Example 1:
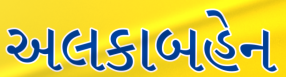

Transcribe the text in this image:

અલકાબહેન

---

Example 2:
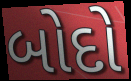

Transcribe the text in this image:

બોદો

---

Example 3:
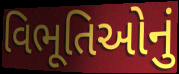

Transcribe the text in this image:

વિભૂતિઓનું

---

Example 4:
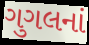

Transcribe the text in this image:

ગુગલનાં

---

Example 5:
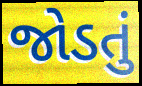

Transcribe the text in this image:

જોડતું